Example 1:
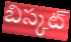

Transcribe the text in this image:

బిస్కట్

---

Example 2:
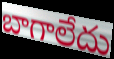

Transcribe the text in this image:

బాగాలేదు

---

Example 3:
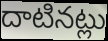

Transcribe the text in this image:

దాటినట్లు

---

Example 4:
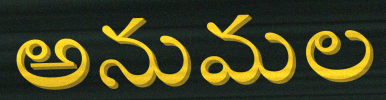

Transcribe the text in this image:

అనుమల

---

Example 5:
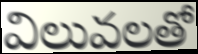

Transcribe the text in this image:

విలువలతో